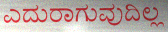
ಎದುರಾಗುವುದಿಲ್ಲ